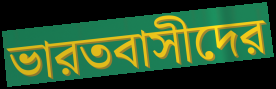
ভারতবাসীদের